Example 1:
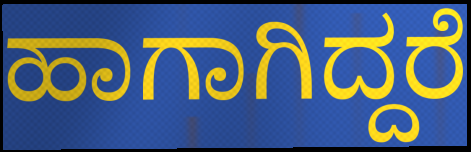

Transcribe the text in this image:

ಹಾಗಾಗಿದ್ದರೆ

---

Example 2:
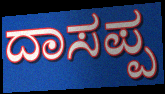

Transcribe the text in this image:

ದಾಸಪ್ಪ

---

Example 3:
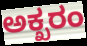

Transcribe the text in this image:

ಅಕ್ಖರಂ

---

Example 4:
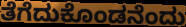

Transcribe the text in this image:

ತೆಗೆದುಕೊಂಡನೆಂದು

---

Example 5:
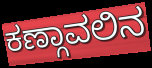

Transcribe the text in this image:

ಕಣ್ಗಾವಲಿನ